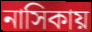
নাসিকায়